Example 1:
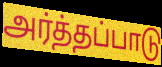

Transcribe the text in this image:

அர்த்தப்பாடு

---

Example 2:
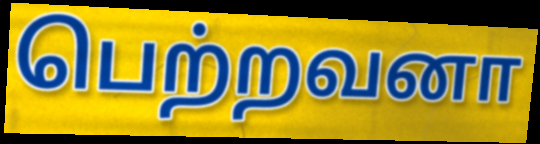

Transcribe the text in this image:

பெற்றவனா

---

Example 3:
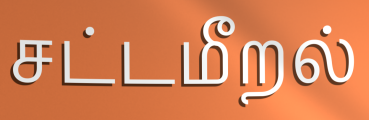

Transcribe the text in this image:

சட்டமீறல்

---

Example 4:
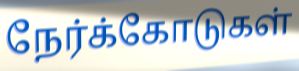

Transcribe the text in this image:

நேர்க்கோடுகள்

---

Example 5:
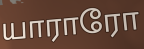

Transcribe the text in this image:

யாராரோ